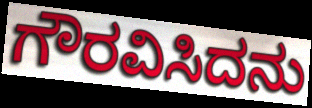
ಗೌರವಿಸಿದನು